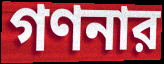
গণনার